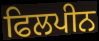
ਫਿਲਪੀਨ